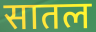
सातल